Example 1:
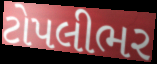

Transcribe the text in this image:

ટોપલીભર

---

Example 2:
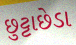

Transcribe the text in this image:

છુટ્ટાછેડા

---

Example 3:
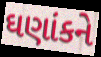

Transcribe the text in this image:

ઘણાંકને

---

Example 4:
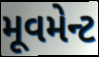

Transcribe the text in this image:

મૂવમેન્ટ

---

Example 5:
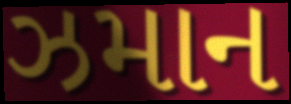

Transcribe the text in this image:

ઝમાન